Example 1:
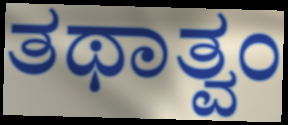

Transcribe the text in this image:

ತಥಾತ್ವಂ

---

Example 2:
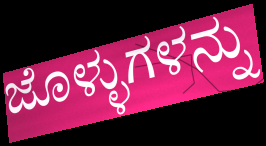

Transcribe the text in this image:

ಜೊಳ್ಳುಗಳನ್ನು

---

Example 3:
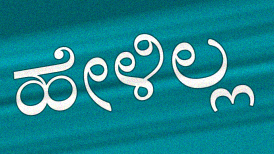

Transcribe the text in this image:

ಹೇಳಿಲ್ಲ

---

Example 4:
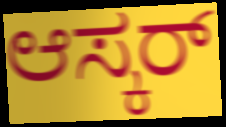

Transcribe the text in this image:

ಆಸ್ಕರ್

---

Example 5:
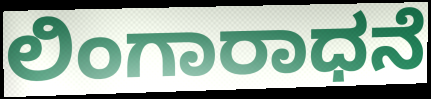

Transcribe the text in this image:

ಲಿಂಗಾರಾಧನೆ